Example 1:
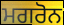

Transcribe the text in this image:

ਮਗਰੋਨ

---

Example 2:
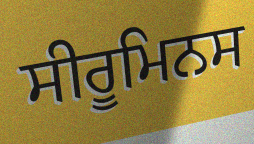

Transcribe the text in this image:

ਸੀਰੂਮਿਨਸ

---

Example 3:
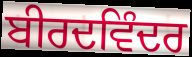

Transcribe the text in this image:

ਬੀਰਦਵਿੰਦਰ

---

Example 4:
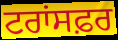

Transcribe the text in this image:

ਟਰਾਂਸਫ਼ਰ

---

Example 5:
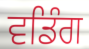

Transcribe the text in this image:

ਵਡਿੰਗ